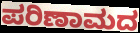
ಪರಿಣಾಮದ